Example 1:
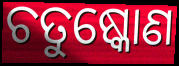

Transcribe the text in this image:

ଚତୁଷ୍କୋଣ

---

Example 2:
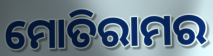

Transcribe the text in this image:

ମୋତିରାମର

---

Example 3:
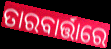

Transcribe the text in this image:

ତାରବାର୍ତ୍ତାରେ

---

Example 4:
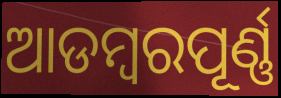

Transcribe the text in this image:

ଆଡମ୍ବରପୂର୍ଣ୍ଣ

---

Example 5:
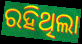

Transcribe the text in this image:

ରହିଥିଲା